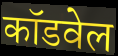
कॉडवेल